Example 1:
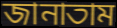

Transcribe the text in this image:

জানাতাম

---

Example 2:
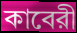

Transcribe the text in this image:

কাবেরী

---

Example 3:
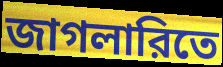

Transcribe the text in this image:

জাগলারিতে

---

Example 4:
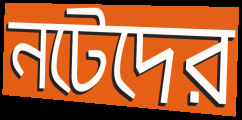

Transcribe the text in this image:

নটেদের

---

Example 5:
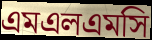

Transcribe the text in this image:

এমএলএমসি